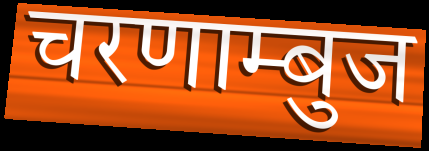
चरणाम्बुज